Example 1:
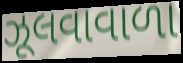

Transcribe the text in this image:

ઝૂલવાવાળા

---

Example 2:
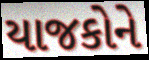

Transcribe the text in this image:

યાજકોને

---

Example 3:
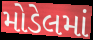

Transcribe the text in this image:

મોડેલમાં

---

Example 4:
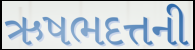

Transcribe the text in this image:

ઋષભદત્તની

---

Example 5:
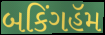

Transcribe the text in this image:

બકિંગહૅમ